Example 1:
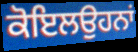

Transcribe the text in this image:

ਕੋਇਲਉਹਨਾਂ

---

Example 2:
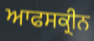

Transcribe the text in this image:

ਆਫਸਕ੍ਰੀਨ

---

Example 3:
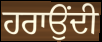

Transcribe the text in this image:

ਹਰਾਉਂਦੀ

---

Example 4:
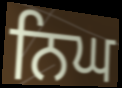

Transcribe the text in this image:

ਨਿਘ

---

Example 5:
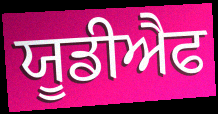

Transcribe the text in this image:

ਯੂਡੀਐਫ